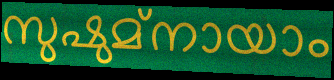
സുഷുമ്നായാം